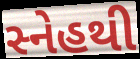
સ્નેહથી